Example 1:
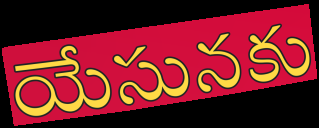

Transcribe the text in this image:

యేసునకు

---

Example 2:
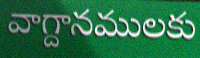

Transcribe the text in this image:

వాగ్దానములకు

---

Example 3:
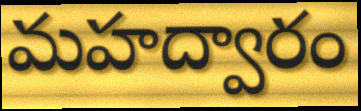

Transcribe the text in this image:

మహద్వారం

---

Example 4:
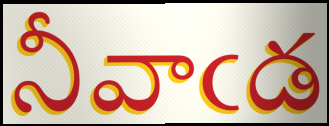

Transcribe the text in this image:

నీవాఁడ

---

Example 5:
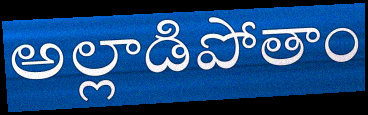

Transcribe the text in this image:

అల్లాడిపోతాం